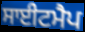
ਸਾਈਟਮੈਪ